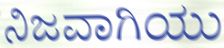
ನಿಜವಾಗಿಯು